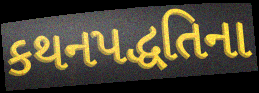
કથનપદ્ધતિના